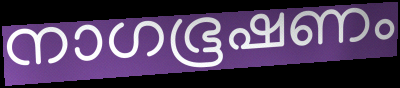
നാഗഭൂഷണം